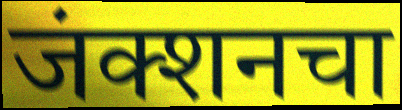
जंक्‍शनचा